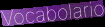
Vocabolario